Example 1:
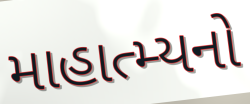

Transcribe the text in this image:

માહાત્મ્યનો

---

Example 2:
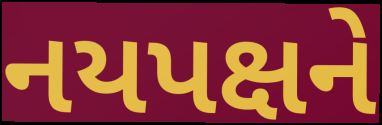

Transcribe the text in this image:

નયપક્ષને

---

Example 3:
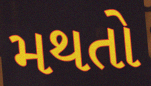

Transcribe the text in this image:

મથતો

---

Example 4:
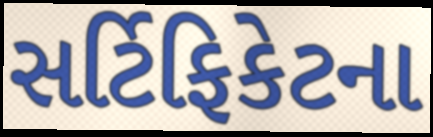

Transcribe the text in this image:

સર્ટિફિકેટના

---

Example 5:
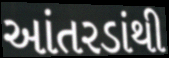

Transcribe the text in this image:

આંતરડાંથી